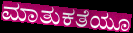
ಮಾತುಕತೆಯೂ